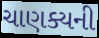
ચાણક્યની